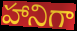
హానిగా